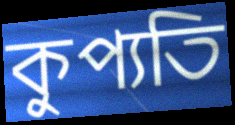
কুপ্যতি